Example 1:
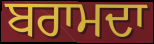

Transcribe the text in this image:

ਬਰਾਮਦਾ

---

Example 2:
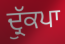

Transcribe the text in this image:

ਦ੍ਰੁੱਕਪਾ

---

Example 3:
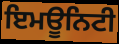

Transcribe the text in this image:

ਇਮਊਨਿਟੀ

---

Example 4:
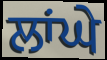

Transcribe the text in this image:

ਲਾਂਘੇ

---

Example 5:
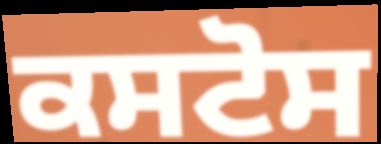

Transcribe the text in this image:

ਕਸਟੋਸ